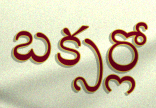
బక్సర్లో